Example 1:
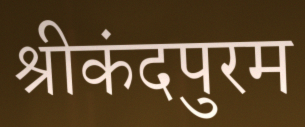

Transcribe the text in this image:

श्रीकंदपुरम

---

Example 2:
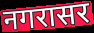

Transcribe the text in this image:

नगरासर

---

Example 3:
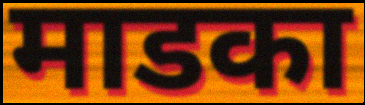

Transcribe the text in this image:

माडका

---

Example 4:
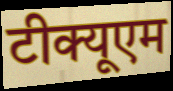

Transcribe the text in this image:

टीक्यूएम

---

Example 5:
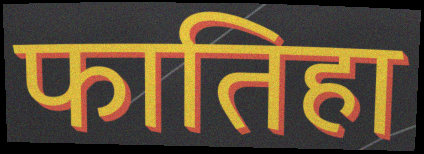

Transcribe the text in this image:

फातिहा